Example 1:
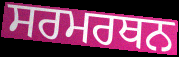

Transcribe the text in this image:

ਸਰਮਰਥਨ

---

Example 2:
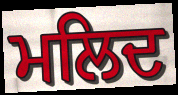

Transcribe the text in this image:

ਮਲਿਦ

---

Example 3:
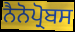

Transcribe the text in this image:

ਨੈਨੋਪ੍ਰੋਬਸ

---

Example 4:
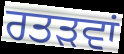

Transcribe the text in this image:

ਰਤੜਵਾਂ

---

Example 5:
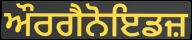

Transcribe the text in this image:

ਔਰਗੈਨੋਇਡਜ਼